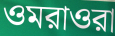
ওমরাওরা